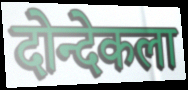
दोन्देकला